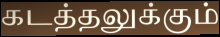
கடத்தலுக்கும்